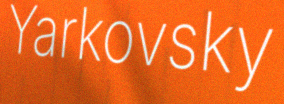
Yarkovsky